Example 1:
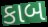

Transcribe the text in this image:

કાબ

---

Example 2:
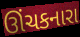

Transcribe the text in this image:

ઊંચકનારા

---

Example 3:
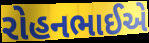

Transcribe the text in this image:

રોહનભાઈએ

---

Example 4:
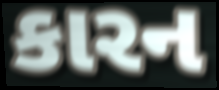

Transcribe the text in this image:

કારન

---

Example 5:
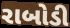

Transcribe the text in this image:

રાબોડી